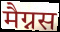
मैग्नस